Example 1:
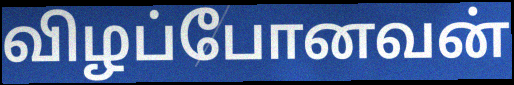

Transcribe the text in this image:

விழப்போனவன்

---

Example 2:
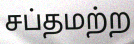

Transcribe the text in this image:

சப்தமற்ற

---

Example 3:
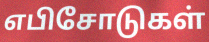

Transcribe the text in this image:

எபிசோடுகள்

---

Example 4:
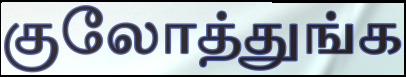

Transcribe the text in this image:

குலோத்துங்க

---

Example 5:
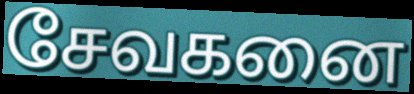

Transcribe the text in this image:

சேவகனை